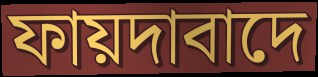
ফায়দাবাদে